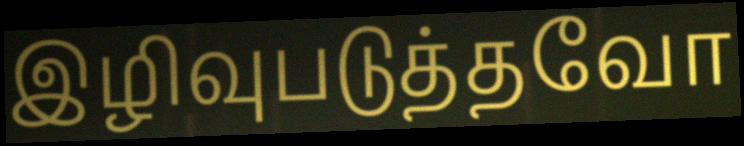
இழிவுபடுத்தவோ